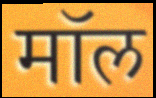
मॉल